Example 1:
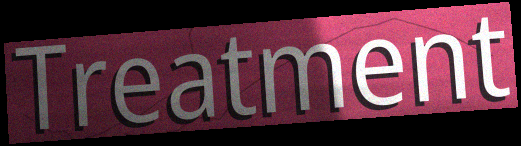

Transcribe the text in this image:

Treatment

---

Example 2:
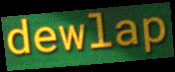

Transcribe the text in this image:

dewlap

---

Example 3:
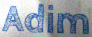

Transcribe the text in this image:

Adim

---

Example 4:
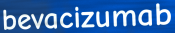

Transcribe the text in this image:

bevacizumab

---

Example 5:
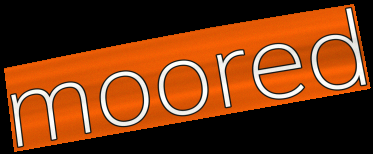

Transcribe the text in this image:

moored